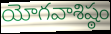
యోగవాశిష్ఠం